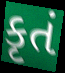
કૃતં